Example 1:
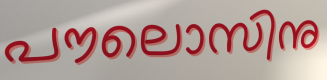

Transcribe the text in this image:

പൗലൊസിനു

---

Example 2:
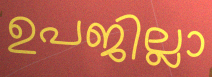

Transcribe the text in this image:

ഉപജില്ലാ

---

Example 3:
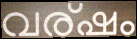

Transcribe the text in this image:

വര്ഷം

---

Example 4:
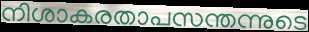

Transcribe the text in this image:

നിശാകരതാപസന്തന്നുടെ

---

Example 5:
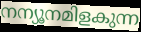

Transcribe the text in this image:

നന്യൂനമിളകുന്ന